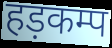
हड़कम्प